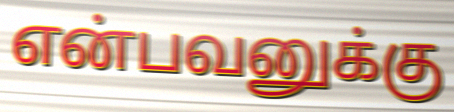
என்பவனுக்கு